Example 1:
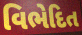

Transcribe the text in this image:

વિભેદિત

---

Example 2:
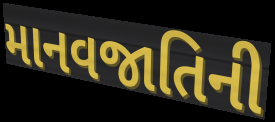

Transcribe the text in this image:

માનવજાતિની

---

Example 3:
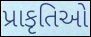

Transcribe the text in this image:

પ્રાકૃતિઓ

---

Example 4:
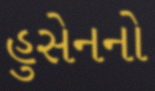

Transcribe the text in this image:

હુસેનનો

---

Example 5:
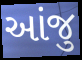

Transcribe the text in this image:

આંજુ